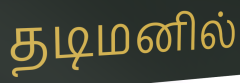
தடிமனில்